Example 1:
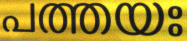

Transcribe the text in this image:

പത്തയഃ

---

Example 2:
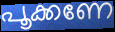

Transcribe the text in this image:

പൂക്കണേ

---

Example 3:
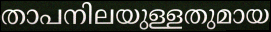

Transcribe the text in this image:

താപനിലയുള്ളതുമായ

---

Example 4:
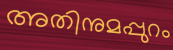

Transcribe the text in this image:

അതിനുമപ്പുറം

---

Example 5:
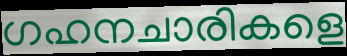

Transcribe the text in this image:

ഗഹനചാരികളെ